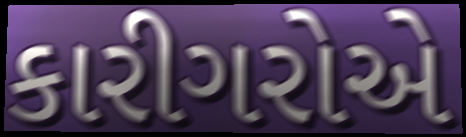
કારીગરોએ